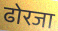
ढोरजा